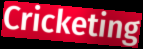
Cricketing